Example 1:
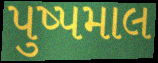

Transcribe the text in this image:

પુષ્પમાલ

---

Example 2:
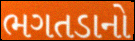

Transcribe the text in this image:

ભગતડાનો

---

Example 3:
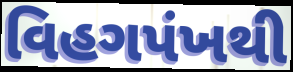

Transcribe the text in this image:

વિહગપંખથી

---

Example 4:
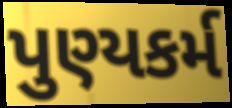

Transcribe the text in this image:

પુણ્યકર્મ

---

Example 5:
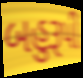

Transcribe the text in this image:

બહુરૂપી